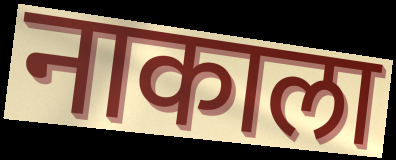
नाकाला